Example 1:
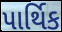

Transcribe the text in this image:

પાર્થિક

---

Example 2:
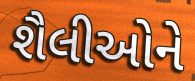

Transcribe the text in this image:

શૈલીઓને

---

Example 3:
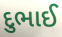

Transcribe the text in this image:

દુભાઈ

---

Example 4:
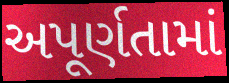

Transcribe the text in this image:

અપૂર્ણતામાં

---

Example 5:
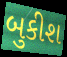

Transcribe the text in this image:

બુકીશ